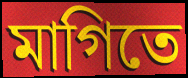
মাগিতে